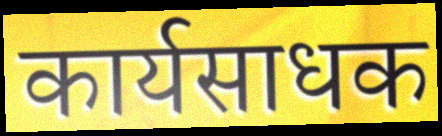
कार्यसाधक